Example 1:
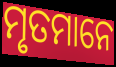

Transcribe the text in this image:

ମୃତମାନେ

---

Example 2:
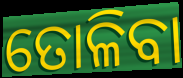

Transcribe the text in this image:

ତୋଳିବା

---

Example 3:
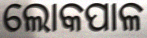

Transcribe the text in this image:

ଲୋକପାଳ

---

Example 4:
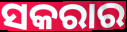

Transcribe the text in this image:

ସକରାର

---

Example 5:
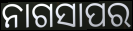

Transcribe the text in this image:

ନାଗସାପର